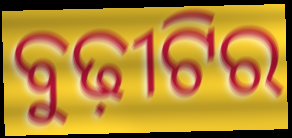
ବୁଢ଼ୀଟିର